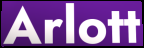
Arlott